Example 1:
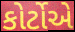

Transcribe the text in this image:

કોર્ટોએ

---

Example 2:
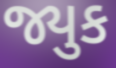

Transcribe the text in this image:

જ્યુક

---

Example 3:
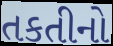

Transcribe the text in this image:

તકતીનો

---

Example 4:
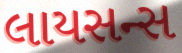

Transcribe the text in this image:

લાયસન્સ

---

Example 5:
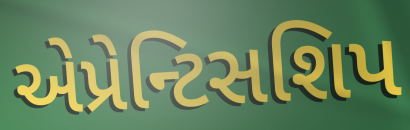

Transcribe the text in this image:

એપ્રેન્ટિસશિપ